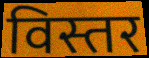
विस्तर